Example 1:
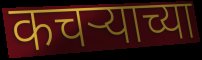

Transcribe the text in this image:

कचर्‍याच्या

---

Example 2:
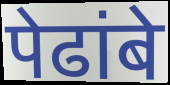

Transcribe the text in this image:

पेढांबे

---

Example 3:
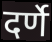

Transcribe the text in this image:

दर्णे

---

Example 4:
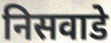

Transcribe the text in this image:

निसवाडे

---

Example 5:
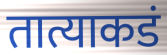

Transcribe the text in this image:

तात्याकडं